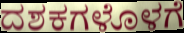
ದಶಕಗಳೊಳಗೆ